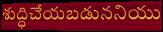
శుద్ధిచేయబడుననియు